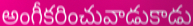
అంగీకరించువాడుకాడు